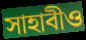
সাহাবীও